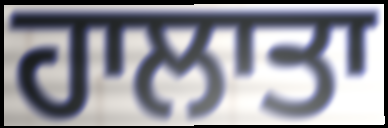
ਹਾਲਾਤਾ